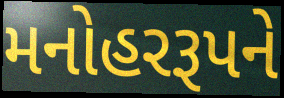
મનોહરરૂપને